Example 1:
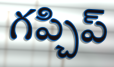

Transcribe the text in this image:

గప్చిప్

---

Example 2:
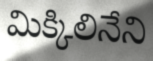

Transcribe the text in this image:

మిక్కిలినేని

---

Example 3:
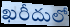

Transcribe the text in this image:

ఖరీదులో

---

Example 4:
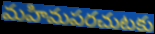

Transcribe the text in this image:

మహిమపరచుటకు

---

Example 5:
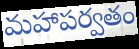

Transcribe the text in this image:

మహాపర్వతం